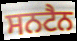
ਸਨਟੈਨ